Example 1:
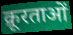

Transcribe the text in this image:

क्रूरताओं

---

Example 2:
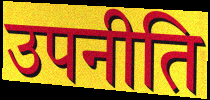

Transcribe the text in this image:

उपनीति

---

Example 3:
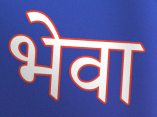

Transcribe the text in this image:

भेवा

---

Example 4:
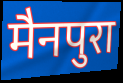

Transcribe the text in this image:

मैनपुरा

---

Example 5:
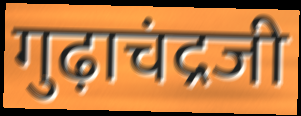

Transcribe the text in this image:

गुढ़ाचंद्रजी